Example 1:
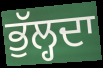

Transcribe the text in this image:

ਭੁੱਲ੍ਹਦਾ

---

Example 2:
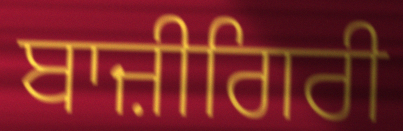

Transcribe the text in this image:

ਬਾਜ਼ੀਗਿਰੀ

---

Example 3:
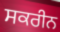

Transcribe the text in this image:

ਸਕਰੀਨ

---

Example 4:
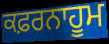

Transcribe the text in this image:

ਕਫ਼ਰਨਾਹੂਮ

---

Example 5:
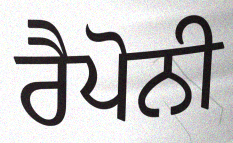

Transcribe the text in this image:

ਰੈਪੋਨੀ